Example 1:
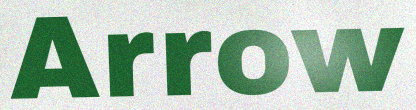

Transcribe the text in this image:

Arrow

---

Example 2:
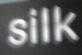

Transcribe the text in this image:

silk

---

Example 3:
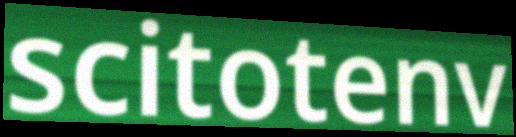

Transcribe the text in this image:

scitotenv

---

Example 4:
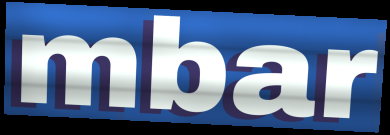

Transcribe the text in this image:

mbar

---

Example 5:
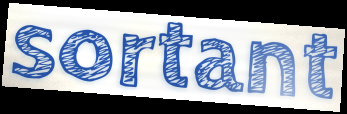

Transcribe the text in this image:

sortant